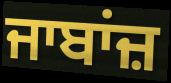
ਜਾਬਾਂਜ਼